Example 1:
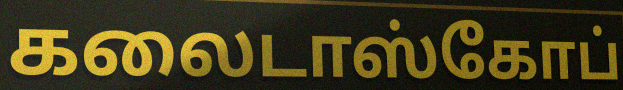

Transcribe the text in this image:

கலைடாஸ்கோப்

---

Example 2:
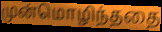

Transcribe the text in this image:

முன்மொழிந்ததை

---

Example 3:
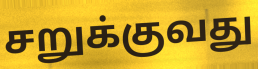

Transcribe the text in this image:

சறுக்குவது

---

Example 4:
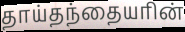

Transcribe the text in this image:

தாய்தந்தையரின்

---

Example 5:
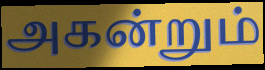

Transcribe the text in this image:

அகன்றும்